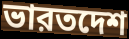
ভারতদেশ